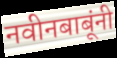
नवीनबाबूंनी